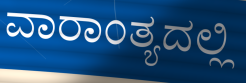
ವಾರಾಂತ್ಯದಲ್ಲಿ